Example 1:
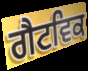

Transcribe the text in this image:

ਗੈਟਵਿਕ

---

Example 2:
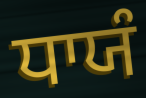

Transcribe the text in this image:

ਧਾਯੰ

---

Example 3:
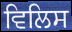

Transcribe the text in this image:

ਵਿਲਿਸ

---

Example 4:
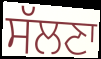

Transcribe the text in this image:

ਸੱਲਣਾ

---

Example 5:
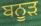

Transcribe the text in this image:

ਬਨੂੜ